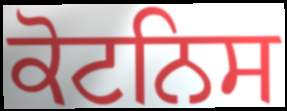
ਕੋਟਨਿਸ